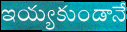
ఇయ్యకుండానే